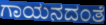
ಗಾಯನದಂತೆ